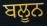
ਬਲੂਨ